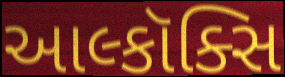
આલ્કૉક્સિ